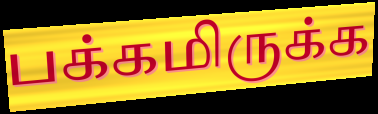
பக்கமிருக்க